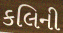
કલિની